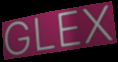
GLEX